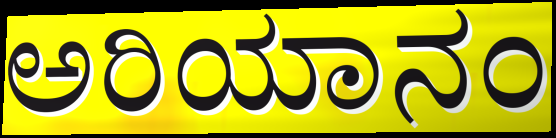
ಅರಿಯಾನಂ